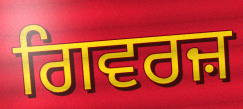
ਗਿਵਰਜ਼